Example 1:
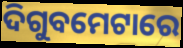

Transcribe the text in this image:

ଦିଗୁବମେଟାରେ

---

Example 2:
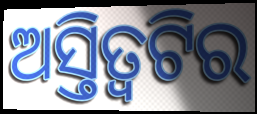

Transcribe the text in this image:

ଅସ୍ତିତ୍ୱଟିର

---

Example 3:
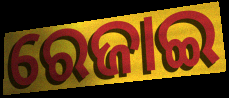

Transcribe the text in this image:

ରେଜାଇ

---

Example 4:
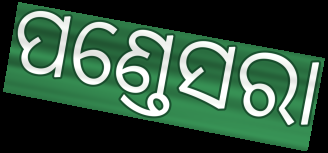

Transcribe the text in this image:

ପଣ୍ଡେସରା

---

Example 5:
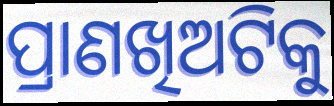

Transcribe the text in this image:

ପ୍ରାଣଖିଅଟିକୁ